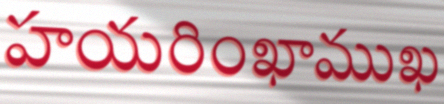
హయరింఖాముఖ